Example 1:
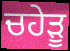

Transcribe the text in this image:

ਚਹੇਡ਼ੂ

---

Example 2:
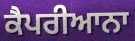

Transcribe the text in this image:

ਕੈਪਰੀਆਨਾ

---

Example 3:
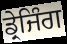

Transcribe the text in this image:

ਡ੍ਰੇਜਿੰਗ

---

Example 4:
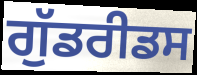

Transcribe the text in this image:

ਗੁੱਡਰੀਡਸ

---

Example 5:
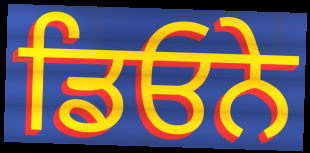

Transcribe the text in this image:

ਡਿਓਨੇ